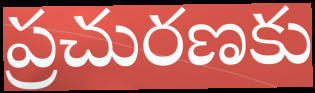
ప్రచురణకు